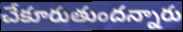
చేకూరుతుందన్నారు